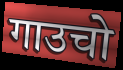
गाउचो